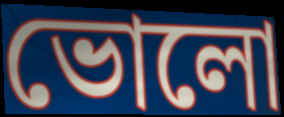
ভোলো